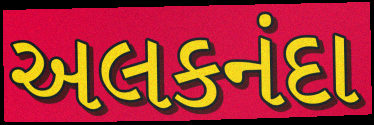
અલકનંદા